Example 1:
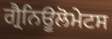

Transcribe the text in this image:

ਗ੍ਰੈਨਿਊਲੋਮੇਟਸ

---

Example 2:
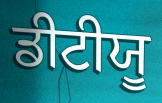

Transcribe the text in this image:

ਡੀਟੀਯੂ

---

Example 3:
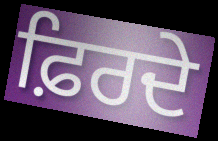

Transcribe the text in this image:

ਫ਼ਿਰਦੇ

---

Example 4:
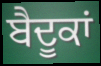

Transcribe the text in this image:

ਬੈਦੂਕਾਂ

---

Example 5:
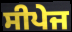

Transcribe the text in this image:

ਸੀਪੇਜ